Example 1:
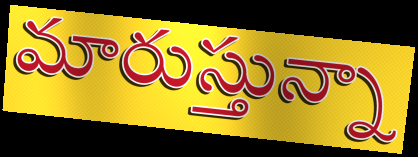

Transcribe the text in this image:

మారుస్తున్నా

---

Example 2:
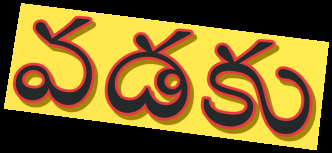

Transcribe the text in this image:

వడకు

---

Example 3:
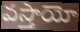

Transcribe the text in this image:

వస్తాయో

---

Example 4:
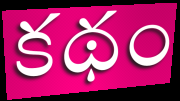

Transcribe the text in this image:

కథం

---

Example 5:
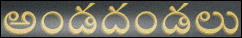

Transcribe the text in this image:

అండదండలు